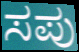
ಸಪು